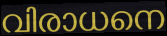
വിരാധനെ